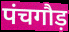
पंचगौड़